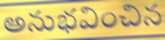
అనుభవించిన